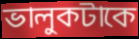
ভালুকটাকে